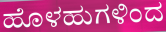
ಹೊಳಹುಗಳಿಂದ